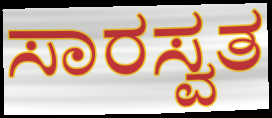
ಸಾರಸ್ವತ